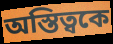
অস্তিত্বকে